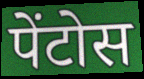
पेंटोस